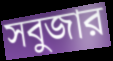
সবুজার